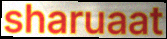
sharuaat